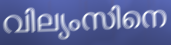
വില്യംസിനെ